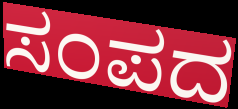
ಸಂಪದ